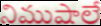
నిముషాలే